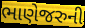
ભાણેજરુની